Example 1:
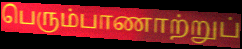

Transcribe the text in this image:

பெரும்பாணாற்றுப்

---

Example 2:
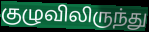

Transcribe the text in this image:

குழுவிலிருந்து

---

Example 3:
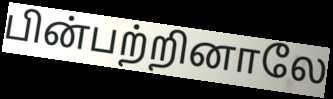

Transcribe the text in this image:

பின்பற்றினாலே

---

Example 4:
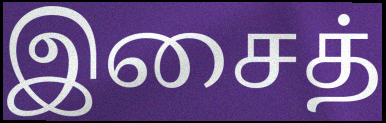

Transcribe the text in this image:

இசைத்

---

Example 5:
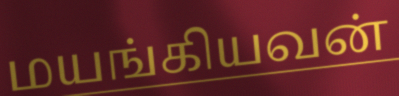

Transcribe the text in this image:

மயங்கியவன்